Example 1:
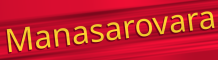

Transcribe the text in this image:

Manasarovara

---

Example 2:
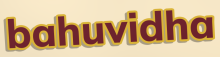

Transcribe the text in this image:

bahuvidha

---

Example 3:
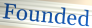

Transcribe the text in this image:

Founded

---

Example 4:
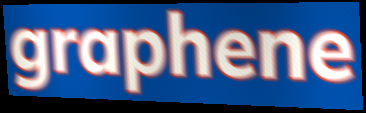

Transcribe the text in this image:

graphene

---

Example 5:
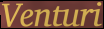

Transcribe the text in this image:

Venturi